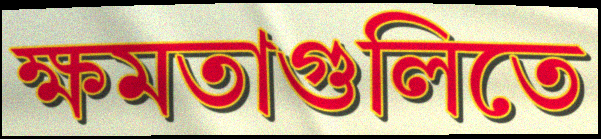
ক্ষমতাগুলিতে